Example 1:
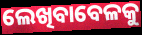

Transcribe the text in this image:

ଲେଖିବାବେଳକୁ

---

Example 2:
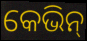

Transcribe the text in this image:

କେଭିନ୍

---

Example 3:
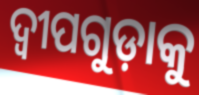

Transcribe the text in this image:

ଦ୍ୱୀପଗୁଡ଼ାକୁ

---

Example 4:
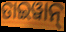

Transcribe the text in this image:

ତାଇୱାନ୍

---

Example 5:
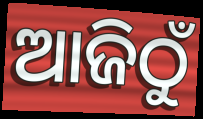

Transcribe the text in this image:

ଆଜିଠୁଁ